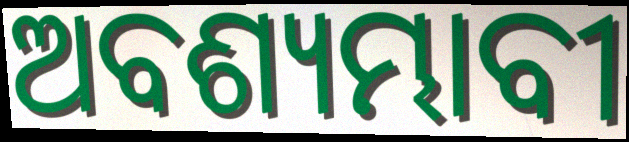
ଅବଶ୍ୟମ୍ଭାବୀ